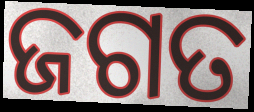
ଜଗତ